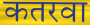
कतरवा